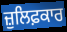
ਜ਼ੁਲਿਫ਼ਕਾਰ